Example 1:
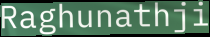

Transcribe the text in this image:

Raghunathji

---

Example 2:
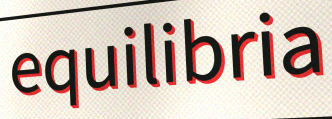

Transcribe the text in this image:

equilibria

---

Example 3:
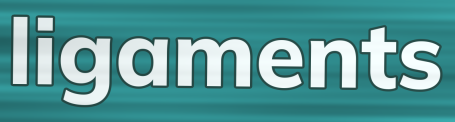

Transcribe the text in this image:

ligaments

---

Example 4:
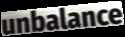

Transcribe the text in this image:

unbalance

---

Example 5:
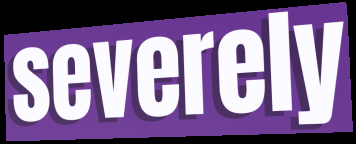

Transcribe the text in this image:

severely